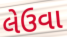
લેઉવા